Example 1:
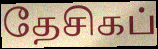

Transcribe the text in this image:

தேசிகப்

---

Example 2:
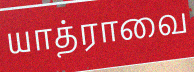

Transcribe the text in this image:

யாத்ராவை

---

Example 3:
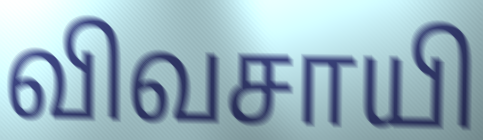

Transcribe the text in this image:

விவசாயி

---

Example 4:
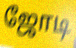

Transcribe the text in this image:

ஜோடி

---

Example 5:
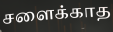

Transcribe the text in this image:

சளைக்காத